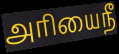
அரியைநீ